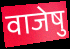
वाजेषु